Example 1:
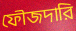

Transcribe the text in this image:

ফৌজদারি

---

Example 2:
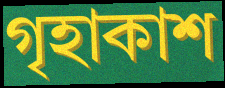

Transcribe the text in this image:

গৃহাকাশ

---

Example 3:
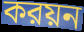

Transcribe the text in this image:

করয়ন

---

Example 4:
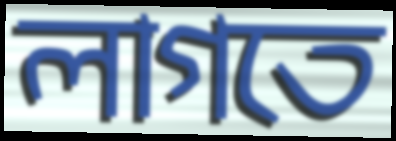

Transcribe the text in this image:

লাগতে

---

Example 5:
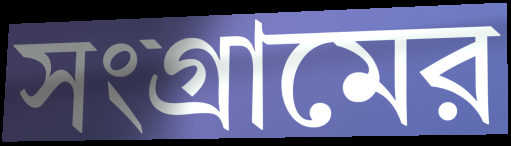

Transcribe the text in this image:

সংগ্রামের